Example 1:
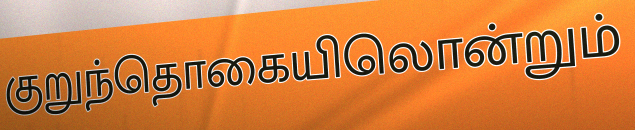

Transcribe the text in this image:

குறுந்தொகையிலொன்றும்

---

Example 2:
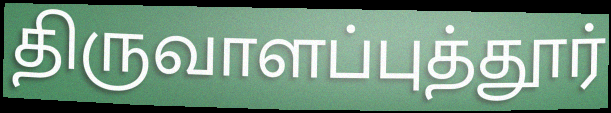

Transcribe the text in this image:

திருவாளப்புத்தூர்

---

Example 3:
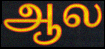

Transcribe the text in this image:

ஆல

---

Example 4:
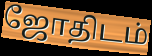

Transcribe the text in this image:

ஜோதிடம்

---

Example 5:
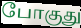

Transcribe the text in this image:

போகுது